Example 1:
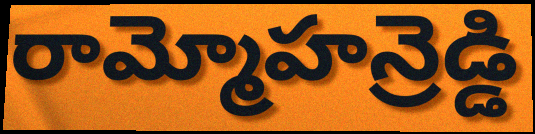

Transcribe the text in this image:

రామ్మోహన్రెడ్డి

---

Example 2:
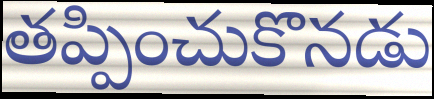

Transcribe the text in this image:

తప్పించుకొనడు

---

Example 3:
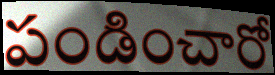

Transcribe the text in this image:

పండించారో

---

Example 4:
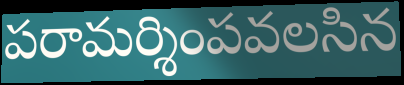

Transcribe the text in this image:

పరామర్శింపవలసిన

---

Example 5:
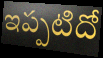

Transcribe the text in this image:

ఇప్పటిదో